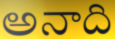
అనాది